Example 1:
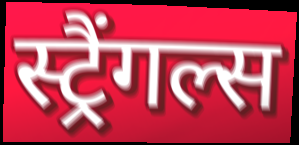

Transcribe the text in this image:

स्ट्रैंगल्स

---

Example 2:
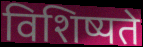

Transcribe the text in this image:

विशिष्यते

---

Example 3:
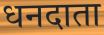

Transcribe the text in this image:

धनदाता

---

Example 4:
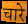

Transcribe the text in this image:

चारे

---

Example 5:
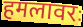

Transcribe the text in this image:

हमलावरः